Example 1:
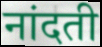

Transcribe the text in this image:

नांदती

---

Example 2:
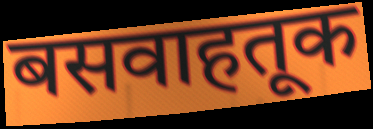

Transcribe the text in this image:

बसवाहतूक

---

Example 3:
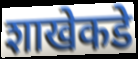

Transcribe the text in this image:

शाखेकडे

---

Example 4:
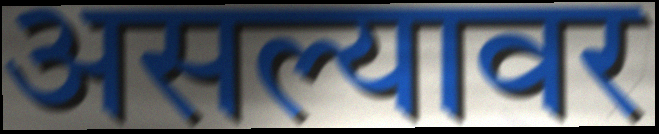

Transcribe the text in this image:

असल्यावर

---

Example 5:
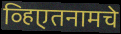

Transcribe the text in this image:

व्हिएतनामचे